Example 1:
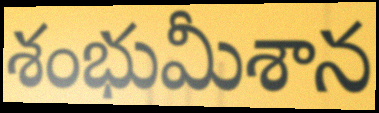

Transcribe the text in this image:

శంభుమీశాన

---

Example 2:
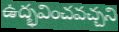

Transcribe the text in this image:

ఉద్భవించవచ్చని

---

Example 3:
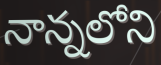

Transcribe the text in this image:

నాన్నలోని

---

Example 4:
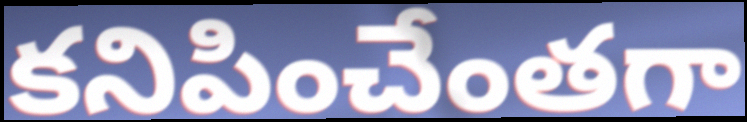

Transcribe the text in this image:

కనిపించేంతగా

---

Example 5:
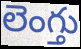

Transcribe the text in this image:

లెంగ్తు